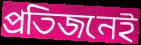
প্ৰতিজনেই